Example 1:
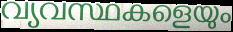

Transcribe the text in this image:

വ്യവസ്ഥകളെയും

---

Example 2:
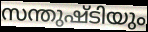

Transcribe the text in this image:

സന്തുഷ്ടിയും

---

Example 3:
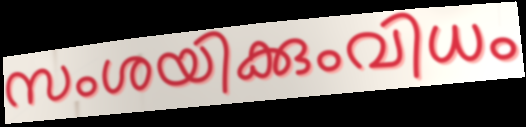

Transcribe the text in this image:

സംശയിക്കുംവിധം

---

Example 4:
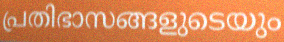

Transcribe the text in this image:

പ്രതിഭാസങ്ങളുടെയും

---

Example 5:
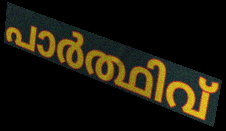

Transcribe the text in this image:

പാർത്ഥിവ്